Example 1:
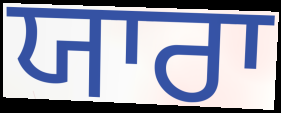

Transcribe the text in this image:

ਯਾਰਾ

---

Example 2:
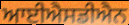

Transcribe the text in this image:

ਆਈਐਸਡੀਐਨ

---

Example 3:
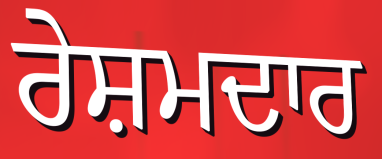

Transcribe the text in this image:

ਰੇਸ਼ਮਦਾਰ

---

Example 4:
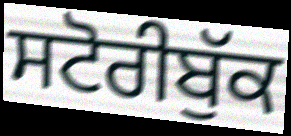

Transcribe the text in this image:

ਸਟੋਰੀਬੁੱਕ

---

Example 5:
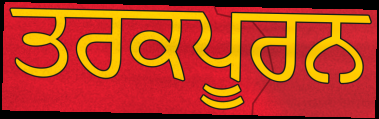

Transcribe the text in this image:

ਤਰਕਪੂਰਨ